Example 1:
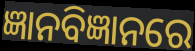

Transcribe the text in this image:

ଜ୍ଞାନବିଜ୍ଞାନରେ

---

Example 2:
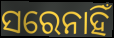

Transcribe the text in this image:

ସରେନାହିଁ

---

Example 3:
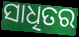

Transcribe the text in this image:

ସାଧିତର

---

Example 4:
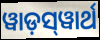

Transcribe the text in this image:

ୱାଡ଼ସ୍‌ୱାର୍ଥ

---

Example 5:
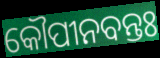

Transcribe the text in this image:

କୌପୀନବନ୍ତଃ